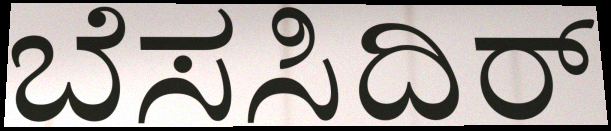
ಬೆಸಸಿದಿರ್